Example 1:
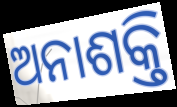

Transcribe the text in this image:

ଅନାଶକ୍ତି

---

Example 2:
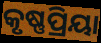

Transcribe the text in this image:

କୃଷ୍ଣପ୍ରିୟା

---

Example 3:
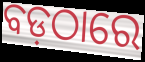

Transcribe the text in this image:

ବଡ଼ଠାରେ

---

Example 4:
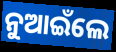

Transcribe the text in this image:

ନୁଆଇଁଲେ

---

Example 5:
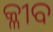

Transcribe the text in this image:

କ୍ଳୀବ